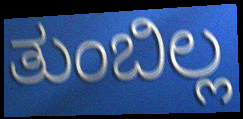
ತುಂಬಿಲ್ಲ